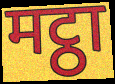
मट्ठा